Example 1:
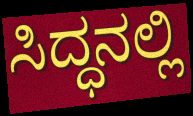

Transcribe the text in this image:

ಸಿದ್ಧನಲ್ಲಿ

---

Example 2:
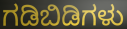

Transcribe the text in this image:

ಗಡಿಬಿಡಿಗಳು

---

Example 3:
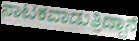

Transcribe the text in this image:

ನಾಟಕವಾಡುತ್ತಿದ್ದಾನೆ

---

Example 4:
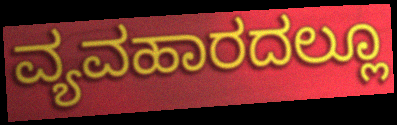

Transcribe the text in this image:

ವ್ಯವಹಾರದಲ್ಲೂ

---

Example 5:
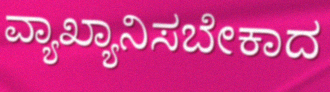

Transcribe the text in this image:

ವ್ಯಾಖ್ಯಾನಿಸಬೇಕಾದ